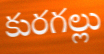
కురగల్లు